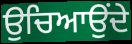
ਉਚਿਆਉਂਦੇ